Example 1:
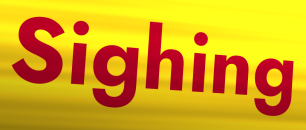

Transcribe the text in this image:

Sighing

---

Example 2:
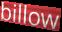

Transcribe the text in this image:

billow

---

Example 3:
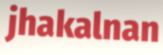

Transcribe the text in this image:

jhakalnan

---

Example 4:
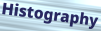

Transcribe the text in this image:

Histography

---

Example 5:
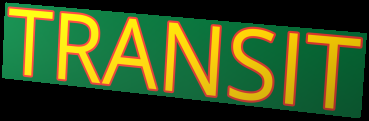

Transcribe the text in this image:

TRANSIT